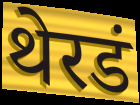
थेरडं